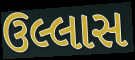
ઉલ્લાસ